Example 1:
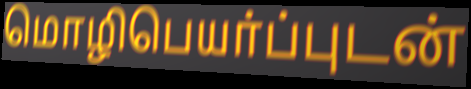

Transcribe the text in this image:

மொழிபெயர்ப்புடன்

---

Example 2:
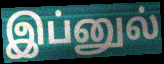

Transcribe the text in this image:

இப்னுல்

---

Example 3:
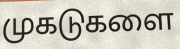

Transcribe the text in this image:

முகடுகளை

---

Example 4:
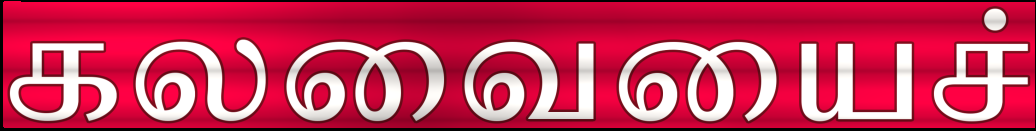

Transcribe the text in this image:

கலவையைச்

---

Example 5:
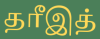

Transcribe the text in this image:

தரீஇத்